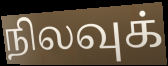
நிலவுக்